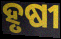
ହୃଷୀ